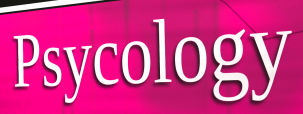
Psycology